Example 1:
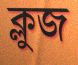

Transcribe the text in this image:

ক্লুজ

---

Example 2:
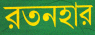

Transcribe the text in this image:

রতনহার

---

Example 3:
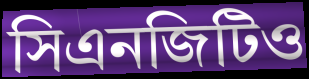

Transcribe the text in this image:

সিএনজিটিও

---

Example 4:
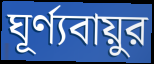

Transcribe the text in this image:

ঘূর্ণ্যবায়ুর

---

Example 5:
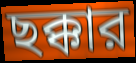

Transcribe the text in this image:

ছক্কার